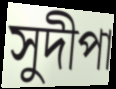
সুদীপা